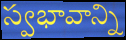
స్వభావాన్ని